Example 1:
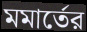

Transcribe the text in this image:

মমার্তের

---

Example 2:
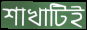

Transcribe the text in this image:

শাখাটিই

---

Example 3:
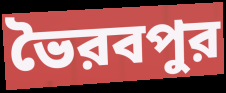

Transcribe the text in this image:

ভৈরবপুর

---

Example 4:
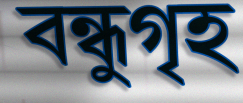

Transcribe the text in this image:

বন্ধুগৃহ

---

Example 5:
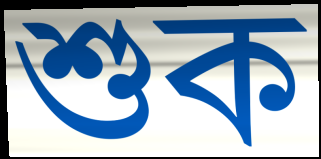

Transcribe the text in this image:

শুক